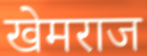
खेमराज